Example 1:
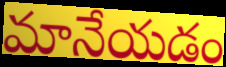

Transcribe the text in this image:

మానేయడం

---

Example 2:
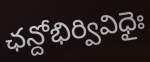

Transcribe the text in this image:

ఛన్దోభిర్వివిధైః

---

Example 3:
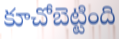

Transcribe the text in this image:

కూచోబెట్టింది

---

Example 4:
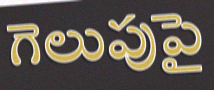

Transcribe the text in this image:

గెలుపుపై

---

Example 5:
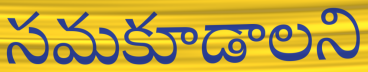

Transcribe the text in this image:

సమకూడాలని